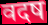
वदष